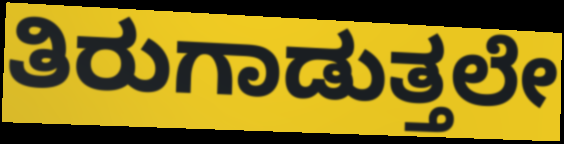
ತಿರುಗಾಡುತ್ತಲೇ